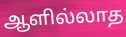
ஆளில்லாத